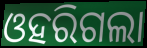
ଓହରିଗଲା